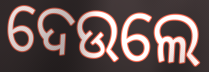
ଦେଉଲେ